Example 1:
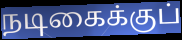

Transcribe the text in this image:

நடிகைக்குப்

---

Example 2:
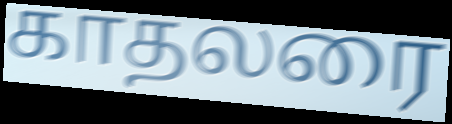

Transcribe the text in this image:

காதலரை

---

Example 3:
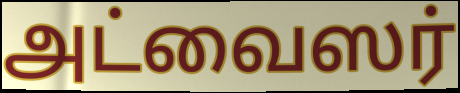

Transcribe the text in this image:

அட்வைஸர்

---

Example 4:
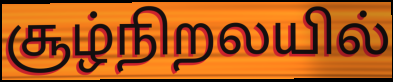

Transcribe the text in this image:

சூழ்நிறலயில்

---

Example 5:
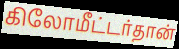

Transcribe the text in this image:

கிலோமீட்டர்தான்